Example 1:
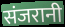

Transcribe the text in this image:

संजरानी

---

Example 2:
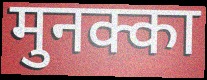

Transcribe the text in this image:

मुनक्का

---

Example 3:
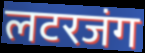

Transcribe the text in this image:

लटरजंग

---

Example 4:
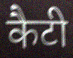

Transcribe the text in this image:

कैटी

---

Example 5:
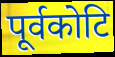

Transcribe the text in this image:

पूर्वकोटि